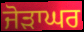
ਜੋੜਾਘਰ